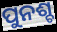
ପୁନଶ୍ଚ